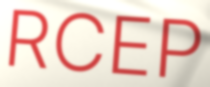
RCEP